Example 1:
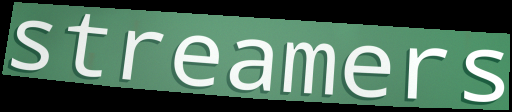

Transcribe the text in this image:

streamers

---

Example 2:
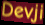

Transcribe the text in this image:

Devji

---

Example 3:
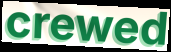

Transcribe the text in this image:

crewed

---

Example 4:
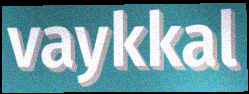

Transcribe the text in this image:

vaykkal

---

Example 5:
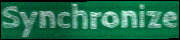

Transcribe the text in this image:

Synchronize